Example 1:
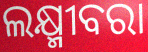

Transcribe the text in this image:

ଲକ୍ଷ୍ମୀବରା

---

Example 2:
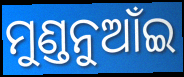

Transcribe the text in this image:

ମୁଣ୍ଡନୁଆଁଇ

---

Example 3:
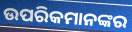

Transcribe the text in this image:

ଉପରିକମାନଙ୍କର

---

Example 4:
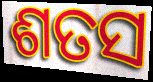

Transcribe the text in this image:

ଶତସ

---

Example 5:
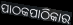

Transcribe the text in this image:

ପାଠକପାଠିକାର